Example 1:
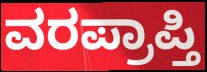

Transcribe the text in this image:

ವರಪ್ರಾಪ್ತಿ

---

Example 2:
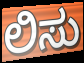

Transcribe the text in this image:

ಲಿಸು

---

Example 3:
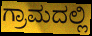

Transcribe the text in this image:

ಗ್ರಾಮದಲ್ಲಿ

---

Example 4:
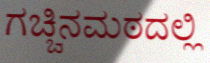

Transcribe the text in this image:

ಗಚ್ಚಿನಮಠದಲ್ಲಿ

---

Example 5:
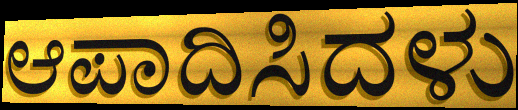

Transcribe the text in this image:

ಆಪಾದಿಸಿದಳು